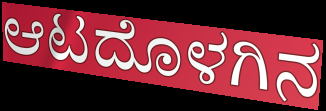
ಆಟದೊಳಗಿನ